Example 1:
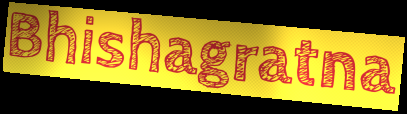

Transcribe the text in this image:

Bhishagratna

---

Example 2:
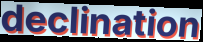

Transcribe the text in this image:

declination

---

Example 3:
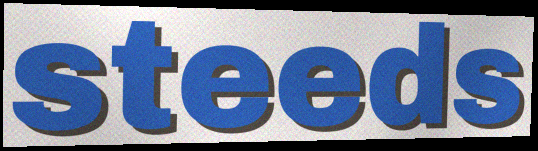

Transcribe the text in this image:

steeds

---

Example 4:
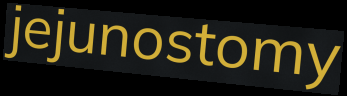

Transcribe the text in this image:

jejunostomy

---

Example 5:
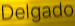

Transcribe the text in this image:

Delgado